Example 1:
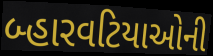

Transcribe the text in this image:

બ્હારવટિયાઓની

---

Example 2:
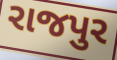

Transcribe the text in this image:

રાજપુર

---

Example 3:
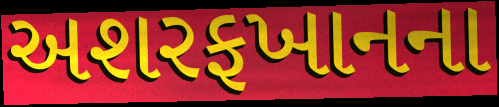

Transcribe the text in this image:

અશરફખાનના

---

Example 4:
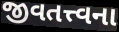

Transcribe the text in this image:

જીવતત્ત્વના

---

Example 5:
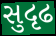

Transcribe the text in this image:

સુદૃઢ